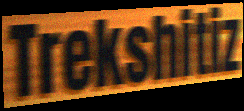
Trekshitiz